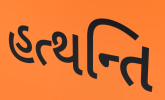
હત્થન્તિ